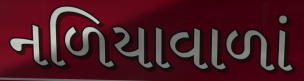
નળિયાવાળાં